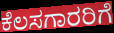
ಕೆಲಸಗಾರರಿಗೆ